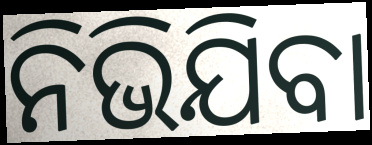
ନିଭିଯିବା